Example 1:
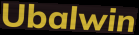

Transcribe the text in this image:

Ubalwin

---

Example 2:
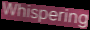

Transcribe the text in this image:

Whispering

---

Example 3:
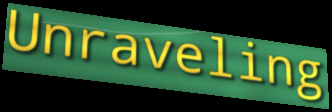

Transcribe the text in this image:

Unraveling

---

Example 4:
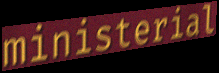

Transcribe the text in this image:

ministerial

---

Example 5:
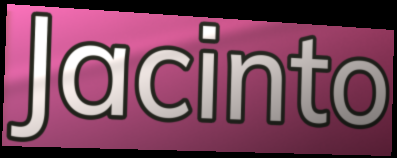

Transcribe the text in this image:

Jacinto